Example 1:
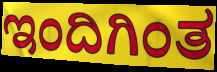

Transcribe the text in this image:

ಇಂದಿಗಿಂತ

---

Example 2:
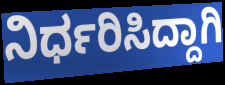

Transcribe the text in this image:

ನಿರ್ಧರಿಸಿದ್ದಾಗಿ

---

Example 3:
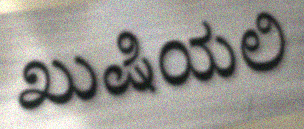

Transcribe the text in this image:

ಖುಷಿಯಲಿ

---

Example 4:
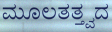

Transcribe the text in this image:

ಮೂಲತತ್ತ್ವದ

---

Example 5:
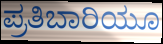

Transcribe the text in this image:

ಪ್ರತಿಬಾರಿಯೂ